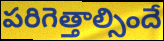
పరిగెత్తాల్సిందే